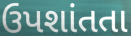
ઉપશાંતતા